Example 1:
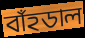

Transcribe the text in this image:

বাঁহডাল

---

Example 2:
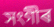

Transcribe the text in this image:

সংগীৰ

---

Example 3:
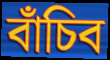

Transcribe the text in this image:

বাঁচিব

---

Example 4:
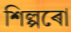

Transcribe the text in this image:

শিল্পৰো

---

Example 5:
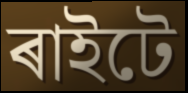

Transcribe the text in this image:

ৰাইটে